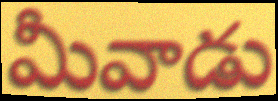
మీవాడు